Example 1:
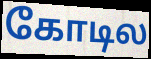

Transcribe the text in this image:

கோடில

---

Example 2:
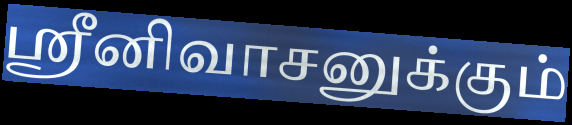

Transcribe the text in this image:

ஸ்ரீனிவாசனுக்கும்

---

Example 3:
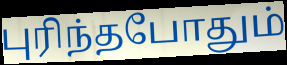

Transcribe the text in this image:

புரிந்தபோதும்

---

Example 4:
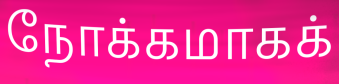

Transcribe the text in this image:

நோக்கமாகக்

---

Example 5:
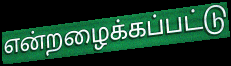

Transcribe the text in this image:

என்றழைக்கப்பட்டு